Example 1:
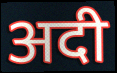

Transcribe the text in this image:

अदी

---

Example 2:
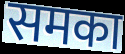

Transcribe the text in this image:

समका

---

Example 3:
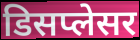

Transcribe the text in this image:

डिसप्लेसर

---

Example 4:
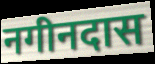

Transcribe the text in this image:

नगीनदास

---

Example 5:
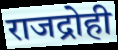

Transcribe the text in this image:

राजद्रोही